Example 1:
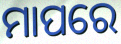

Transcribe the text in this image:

ମାପରେ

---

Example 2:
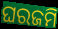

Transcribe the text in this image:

ଘରଜମି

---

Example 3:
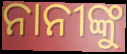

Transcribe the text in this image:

ନାନୀଙ୍କୁ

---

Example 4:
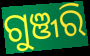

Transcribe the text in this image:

ଗୁଞ୍ଜରି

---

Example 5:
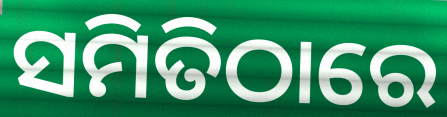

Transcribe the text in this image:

ସମିତିଠାରେ